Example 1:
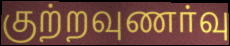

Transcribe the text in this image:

குற்றவுணர்வு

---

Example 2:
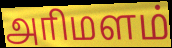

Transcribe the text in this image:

அரிமளம்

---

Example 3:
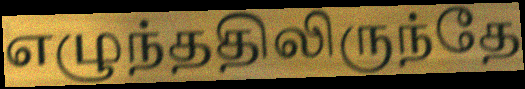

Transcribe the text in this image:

எழுந்ததிலிருந்தே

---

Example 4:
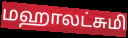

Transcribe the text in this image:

மஹாலட்சுமி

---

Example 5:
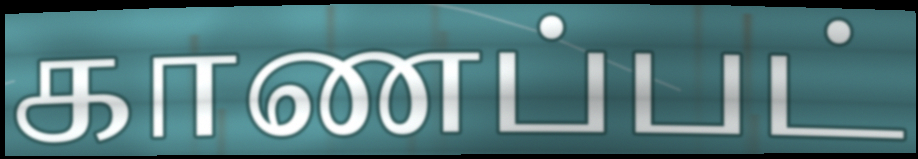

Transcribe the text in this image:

காணப்பட்